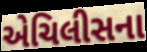
એચિલીસના